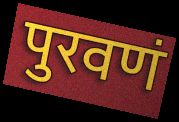
पुरवणं